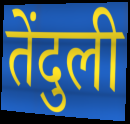
तेंदुली